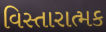
વિસ્તારાત્મક